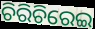
ଚିରିଚିରେଇ